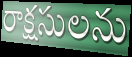
రాక్షసులను